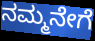
ನಮ್ಮನೇಗೆ